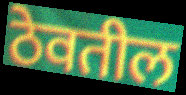
ठेवतील